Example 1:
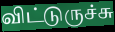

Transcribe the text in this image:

விட்டுருச்சு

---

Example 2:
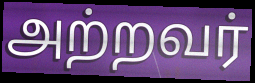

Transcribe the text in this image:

அற்றவர்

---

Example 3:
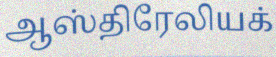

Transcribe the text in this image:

ஆஸ்திரேலியக்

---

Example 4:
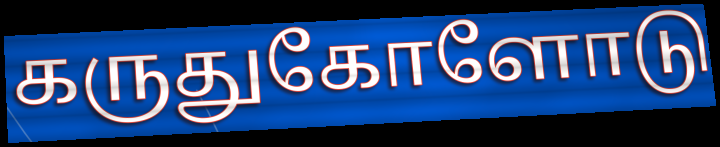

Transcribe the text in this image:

கருதுகோளோடு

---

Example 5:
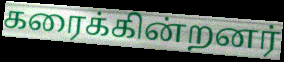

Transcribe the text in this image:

கரைக்கின்றனர்